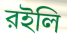
রইলি